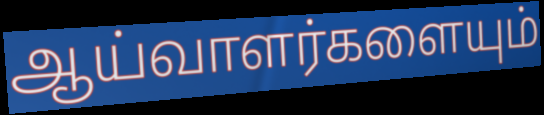
ஆய்வாளர்களையும்